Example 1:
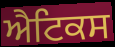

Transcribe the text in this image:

ਐਟਿਕਸ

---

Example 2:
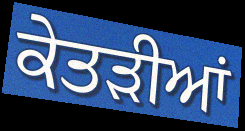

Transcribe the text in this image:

ਕੇਤੜੀਆਂ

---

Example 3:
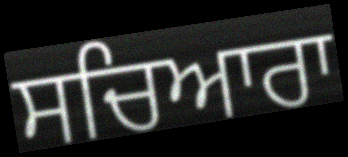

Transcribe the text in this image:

ਸਚਿਆਰਾ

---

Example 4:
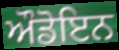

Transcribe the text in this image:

ਔਡੋਇਨ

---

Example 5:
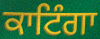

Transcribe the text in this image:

ਕਾਟਿੰਗਾ